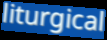
liturgical